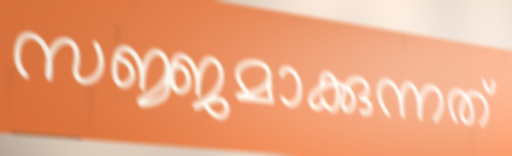
സജ്ജമാക്കുന്നത്